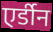
एर्डीन